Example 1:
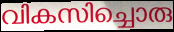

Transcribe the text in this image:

വികസിച്ചൊരു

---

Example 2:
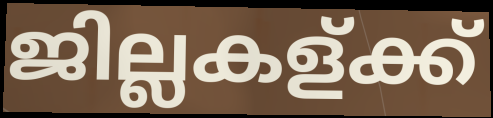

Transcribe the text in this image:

ജില്ലകള്ക്ക്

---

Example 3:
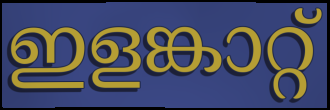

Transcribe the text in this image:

ഇളങ്കാറ്റ്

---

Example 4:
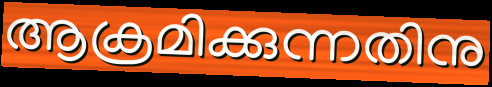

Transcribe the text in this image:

ആക്രമിക്കുന്നതിനു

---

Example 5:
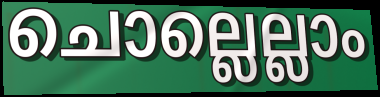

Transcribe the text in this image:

ചൊല്ലെല്ലാം